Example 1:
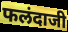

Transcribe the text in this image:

फलंदाजी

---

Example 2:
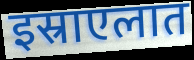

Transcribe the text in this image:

इस्राएलात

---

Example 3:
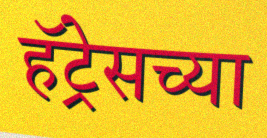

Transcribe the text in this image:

हॅट्रेसच्या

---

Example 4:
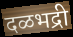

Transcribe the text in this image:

दळभद्री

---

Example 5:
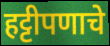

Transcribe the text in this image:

हट्टीपणाचे